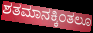
ಶತಮಾನಕ್ಕಿಂತಲೂ